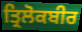
ਤ੍ਰਿਲੋਕਬੀਰ